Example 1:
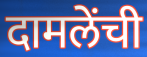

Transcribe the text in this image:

दामलेंची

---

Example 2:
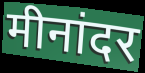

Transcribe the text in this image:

मीनांदर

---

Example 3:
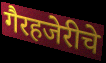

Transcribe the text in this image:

गैरहजेरीचे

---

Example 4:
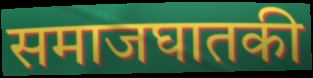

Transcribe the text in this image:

समाजघातकी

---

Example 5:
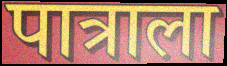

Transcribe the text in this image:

पात्राला